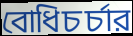
বোধিচর্চার